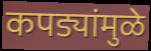
कपड्यांमुळे